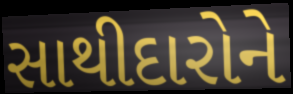
સાથીદારોને